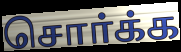
சொர்க்க